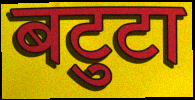
बटुटा